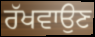
ਰੱਖਵਾਉਣ